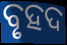
ବୃହଦ